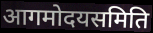
आगमोदयसमिति